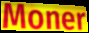
Moner